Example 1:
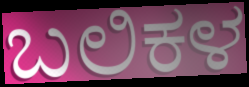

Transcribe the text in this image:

ಬಲಿಕಳ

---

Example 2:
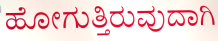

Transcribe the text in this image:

ಹೋಗುತ್ತಿರುವುದಾಗಿ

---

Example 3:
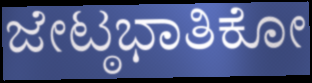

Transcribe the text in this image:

ಜೇಟ್ಠಭಾತಿಕೋ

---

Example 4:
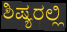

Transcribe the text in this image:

ಶಿಷ್ಯರಲ್ಲಿ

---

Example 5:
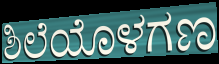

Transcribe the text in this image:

ಶಿಲೆಯೊಳಗಣ